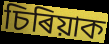
চিৰিয়াক